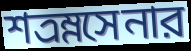
শত্রম্নসেনার